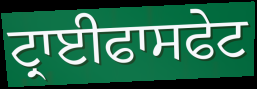
ਟ੍ਰਾਈਫਾਸਫੇਟ